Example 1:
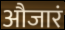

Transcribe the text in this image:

औजारं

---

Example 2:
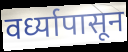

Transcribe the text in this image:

वर्ध्यापासून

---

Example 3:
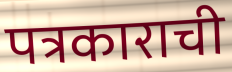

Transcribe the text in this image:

पत्रकाराची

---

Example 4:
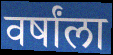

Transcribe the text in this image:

वर्षांला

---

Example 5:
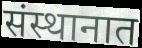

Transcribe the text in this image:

संस्थानात